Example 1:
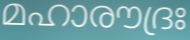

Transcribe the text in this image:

മഹാരൗദ്രഃ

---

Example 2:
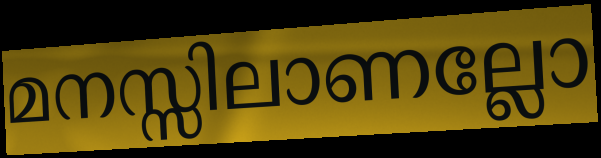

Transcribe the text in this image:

മനസ്സിലാണല്ലോ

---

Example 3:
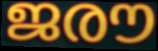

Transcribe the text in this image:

ജരൗ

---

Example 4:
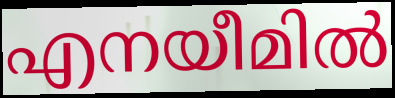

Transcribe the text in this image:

എനയീമിൽ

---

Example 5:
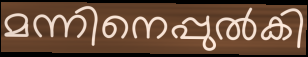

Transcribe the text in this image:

മന്നിനെപ്പുൽകി